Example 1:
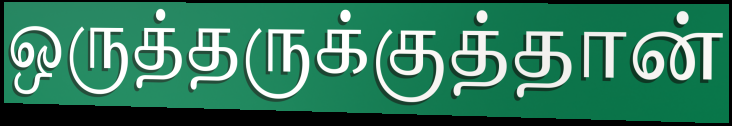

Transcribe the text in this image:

ஒருத்தருக்குத்தான்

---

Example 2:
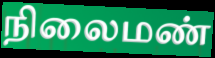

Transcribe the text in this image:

நிலைமண்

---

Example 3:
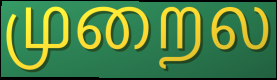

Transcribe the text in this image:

முறைல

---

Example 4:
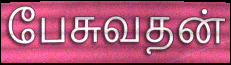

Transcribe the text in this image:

பேசுவதன்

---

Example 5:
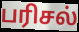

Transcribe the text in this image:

பரிசல்